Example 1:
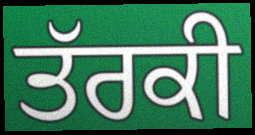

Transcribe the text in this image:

ਤੱਰਕੀ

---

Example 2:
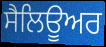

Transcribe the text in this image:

ਸੈਲਿਊਅਰ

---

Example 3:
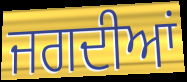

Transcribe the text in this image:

ਜਗਦੀਆਂ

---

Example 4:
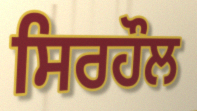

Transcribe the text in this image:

ਸਿਰਹੌਲ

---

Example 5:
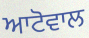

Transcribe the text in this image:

ਆਟੋਵਾਲ